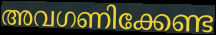
അവഗണിക്കേണ്ട